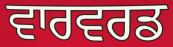
ਵਾਰਵਰਡ